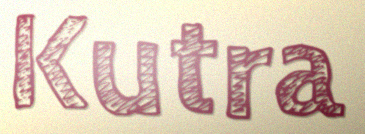
Kutra